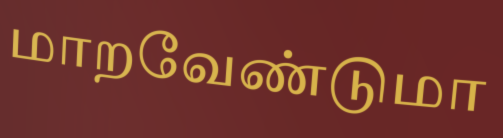
மாறவேண்டுமா